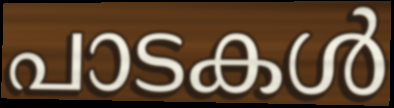
പാടകൾ